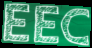
EEC